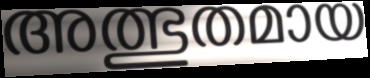
അത്ഭുതമായ